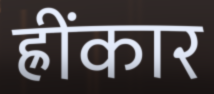
ह्रींकार